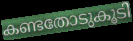
കണ്ടതോടുകൂടി